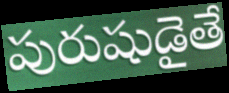
పురుషుడైతే